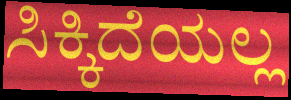
ಸಿಕ್ಕಿದೆಯಲ್ಲ